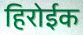
हिरोईक